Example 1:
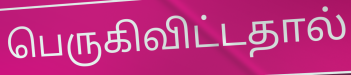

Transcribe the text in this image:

பெருகிவிட்டதால்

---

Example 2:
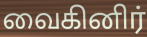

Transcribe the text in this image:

வைகினிர்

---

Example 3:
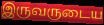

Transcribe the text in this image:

இருவருடைய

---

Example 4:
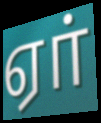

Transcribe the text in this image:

ஏர்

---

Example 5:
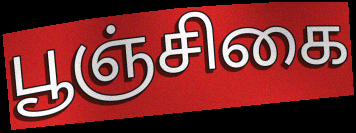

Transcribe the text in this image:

பூஞ்சிகை